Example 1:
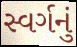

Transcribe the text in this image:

સ્વર્ગનું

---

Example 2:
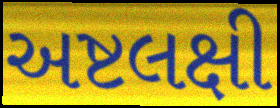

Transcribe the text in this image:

અષ્ટલક્ષી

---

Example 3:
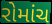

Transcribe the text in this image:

રોમાંચ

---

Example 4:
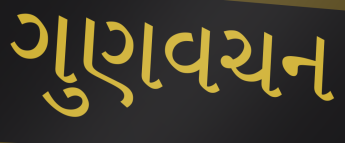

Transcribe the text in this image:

ગુણવચન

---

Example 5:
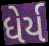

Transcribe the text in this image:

ધેર્ય